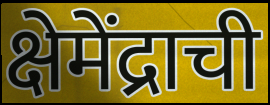
क्षेमेंद्राची